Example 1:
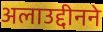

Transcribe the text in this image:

अलाउद्दीनने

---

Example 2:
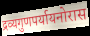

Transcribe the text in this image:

द्रव्यगुणपर्यायनोरास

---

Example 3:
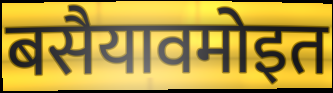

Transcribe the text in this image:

बसैयावमोइत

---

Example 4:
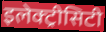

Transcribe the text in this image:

इलेक्ट्रीसिटी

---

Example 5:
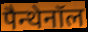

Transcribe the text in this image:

पैन्थेनॉल